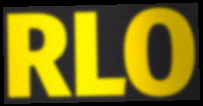
RLO